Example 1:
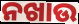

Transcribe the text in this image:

ନଖାଉ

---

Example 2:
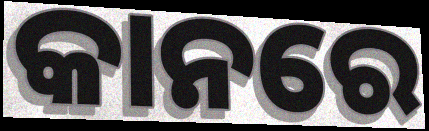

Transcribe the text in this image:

କାନରେ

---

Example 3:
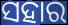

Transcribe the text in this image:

ସହାର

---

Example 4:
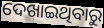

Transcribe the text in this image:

ଦେଖାଇଥିବାରୁ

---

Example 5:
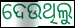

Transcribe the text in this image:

ଦେଉଥିଲୁ